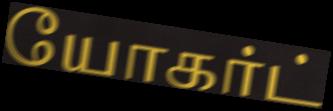
யோகர்ட்